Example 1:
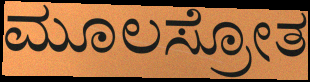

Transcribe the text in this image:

ಮೂಲಸ್ರೋತ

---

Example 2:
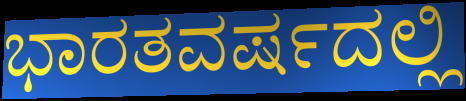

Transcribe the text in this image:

ಭಾರತವರ್ಷದಲ್ಲಿ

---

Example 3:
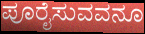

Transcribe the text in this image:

ಪೂರೈಸುವವನೂ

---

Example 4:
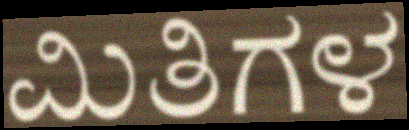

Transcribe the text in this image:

ಮಿತಿಗಳ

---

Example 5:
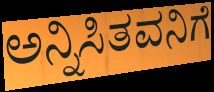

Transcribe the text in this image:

ಅನ್ನಿಸಿತವನಿಗೆ